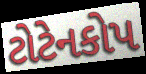
ટોટેનકોપ